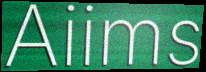
Aiims